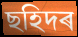
ছহিদৰ